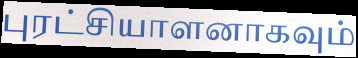
புரட்சியாளனாகவும்